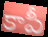
కాపీ